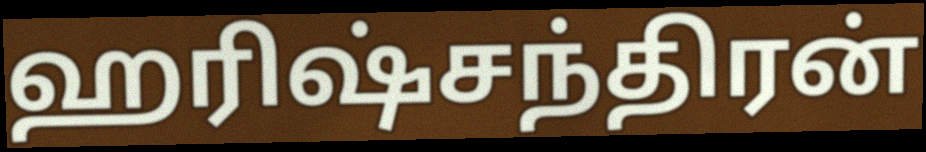
ஹரிஷ்சந்திரன்